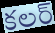
కలర్